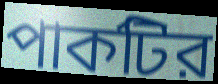
পার্কটির